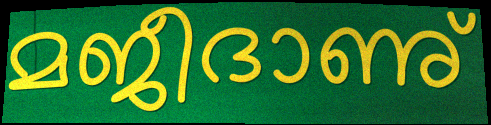
മജീദാണു്